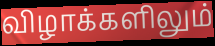
விழாக்களிலும்